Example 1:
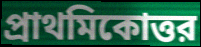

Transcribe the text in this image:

প্রাথমিকোত্তর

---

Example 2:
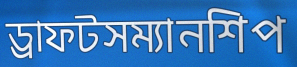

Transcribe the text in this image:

ড্রাফটসম্যানশিপ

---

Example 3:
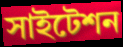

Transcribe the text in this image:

সাইটেশন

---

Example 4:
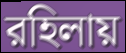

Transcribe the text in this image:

রহিলায়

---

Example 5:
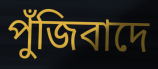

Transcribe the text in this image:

পুঁজিবাদে